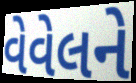
વેવેલને